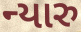
ન્યારુ